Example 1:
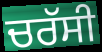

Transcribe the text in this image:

ਚਰੱਸੀ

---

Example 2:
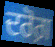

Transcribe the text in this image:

ਦਰੋਗ਼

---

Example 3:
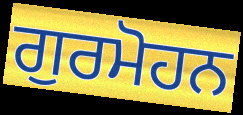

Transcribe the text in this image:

ਗੁਰਮੋਹਨ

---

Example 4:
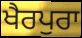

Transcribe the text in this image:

ਖੈਰਪੁਰਾ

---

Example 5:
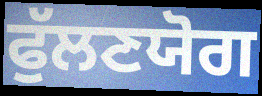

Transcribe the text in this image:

ਫੁੱਲਣਯੋਗ